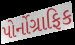
પોર્નોગ્રાફિક